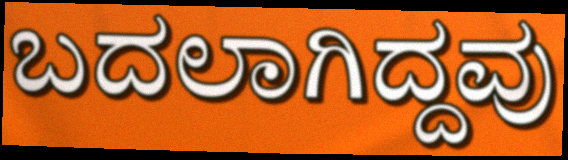
ಬದಲಾಗಿದ್ದವು